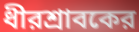
ধীরশ্রাবকের